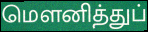
மெளனித்துப்